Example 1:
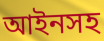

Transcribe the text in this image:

আইনসহ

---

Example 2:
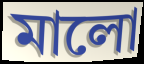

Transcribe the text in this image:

মালো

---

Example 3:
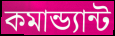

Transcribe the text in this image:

কমান্ড্যান্ট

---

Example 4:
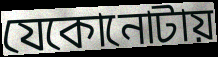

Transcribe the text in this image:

যেকোনোটায়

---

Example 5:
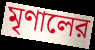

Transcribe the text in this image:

মৃণালের